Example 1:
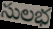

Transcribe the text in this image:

సులభ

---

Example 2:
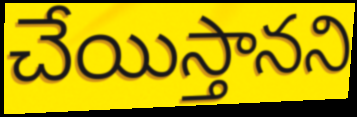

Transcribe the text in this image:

చేయిస్తానని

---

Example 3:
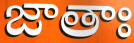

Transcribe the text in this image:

జాతాః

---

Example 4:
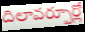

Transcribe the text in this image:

దిలావర్పూర్లో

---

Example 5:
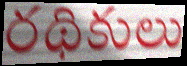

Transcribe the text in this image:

రథికులు